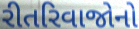
રીતરિવાજોનો